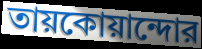
তায়কোয়ান্দোর